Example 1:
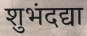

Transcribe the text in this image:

शुभंदद्या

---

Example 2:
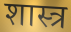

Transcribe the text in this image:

शास्‍त्र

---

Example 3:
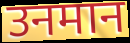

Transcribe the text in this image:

उनमान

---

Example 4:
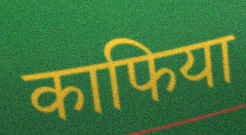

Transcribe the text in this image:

काफिया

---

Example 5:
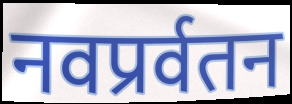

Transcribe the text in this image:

नवप्रर्वतन